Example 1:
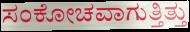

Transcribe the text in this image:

ಸಂಕೋಚವಾಗುತ್ತಿತ್ತು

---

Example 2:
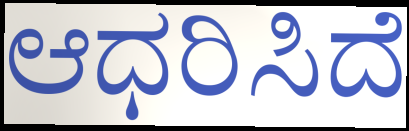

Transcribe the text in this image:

ಆಧರಿಸಿದೆ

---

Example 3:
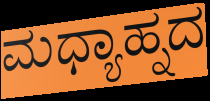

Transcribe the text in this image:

ಮಧ್ಯಾಹ್ನದ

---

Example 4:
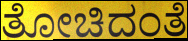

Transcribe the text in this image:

ತೋಚಿದಂತೆ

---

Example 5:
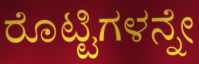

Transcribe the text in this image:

ರೊಟ್ಟಿಗಳನ್ನೇ